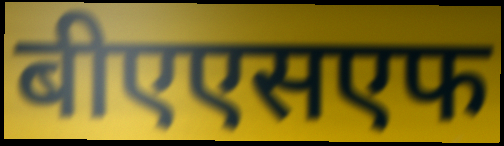
बीएएसएफ